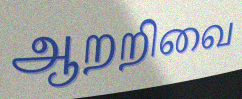
ஆறறிவை